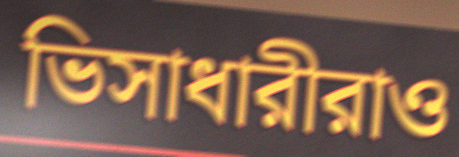
ভিসাধারীরাও